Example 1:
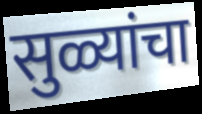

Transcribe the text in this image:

सुळ्यांचा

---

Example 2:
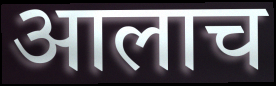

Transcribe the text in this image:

आलाच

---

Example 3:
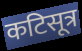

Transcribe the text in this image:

कटिसूत्र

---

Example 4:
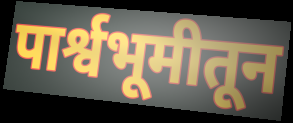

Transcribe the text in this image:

पार्श्वभूमीतून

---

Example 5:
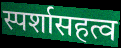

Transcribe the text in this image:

स्पर्शासहत्व